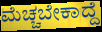
ಮೆಚ್ಚಬೇಕಾದ್ದೆ